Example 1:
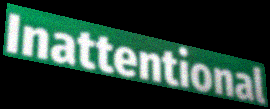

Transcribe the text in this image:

Inattentional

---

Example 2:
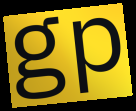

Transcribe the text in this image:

gp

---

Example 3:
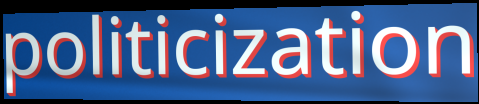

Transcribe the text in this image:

politicization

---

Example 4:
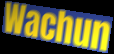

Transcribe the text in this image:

Wachun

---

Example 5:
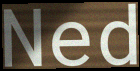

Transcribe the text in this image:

Ned